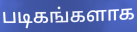
படிகங்களாக